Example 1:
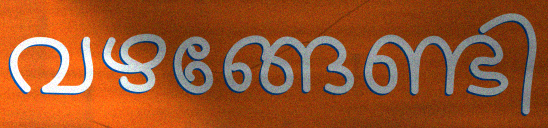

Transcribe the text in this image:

വഴങ്ങേണ്ടി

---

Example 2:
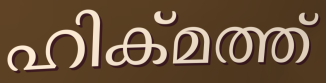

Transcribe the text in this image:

ഹിക്മത്ത്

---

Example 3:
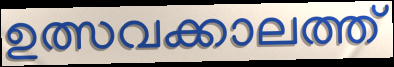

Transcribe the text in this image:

ഉത്സവക്കാലത്ത്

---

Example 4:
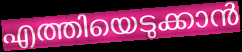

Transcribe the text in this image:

എത്തിയെടുക്കാൻ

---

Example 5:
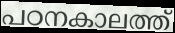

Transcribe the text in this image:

പഠനകാലത്ത്